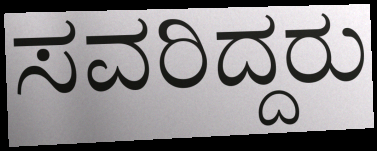
ಸವರಿದ್ದರು